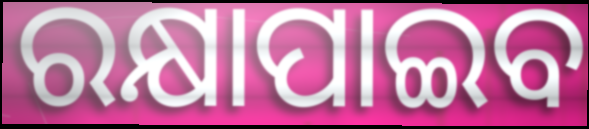
ରକ୍ଷାପାଇବ